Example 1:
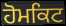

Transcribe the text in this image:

ਹੋਮਕਿਟ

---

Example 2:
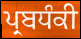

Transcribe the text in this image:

ਪ੍ਰਬਧੰਕੀ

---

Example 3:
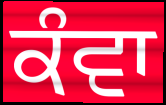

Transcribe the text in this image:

ਕੰਵਾ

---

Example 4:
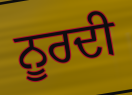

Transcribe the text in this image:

ਨੂਰਦੀ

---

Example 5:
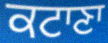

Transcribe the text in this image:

ਕਟਾਣਾ